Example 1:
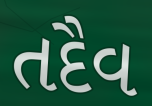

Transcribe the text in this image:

તદૈવ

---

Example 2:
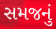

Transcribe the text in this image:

સમજનું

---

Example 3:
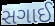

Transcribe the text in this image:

સગાઈ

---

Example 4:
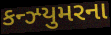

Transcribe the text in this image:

કન્ઝ્યુમરના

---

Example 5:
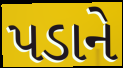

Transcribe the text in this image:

પડાને